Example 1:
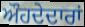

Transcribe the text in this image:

ਔਹਦੇਦਾਰਾਂ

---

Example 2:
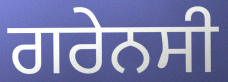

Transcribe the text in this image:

ਗਰੇਨਸੀ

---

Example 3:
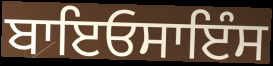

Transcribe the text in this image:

ਬਾਇਓਸਾਇੰਸ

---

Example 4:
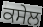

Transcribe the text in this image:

ਕਸੇਲ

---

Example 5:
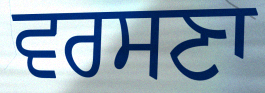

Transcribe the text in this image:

ਵਰਸਣਾ